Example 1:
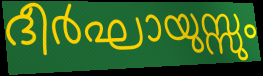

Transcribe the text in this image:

ദീർഘായുസ്സും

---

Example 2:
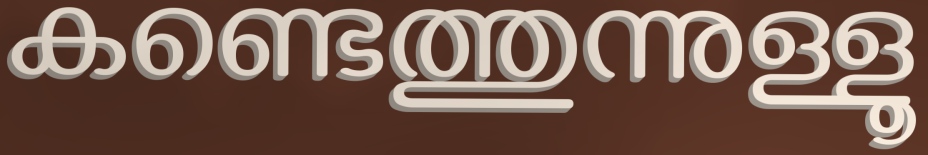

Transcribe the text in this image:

കണ്ടെത്തുന്നുള്ളൂ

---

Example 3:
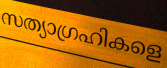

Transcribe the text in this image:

സത്യാഗ്രഹികളെ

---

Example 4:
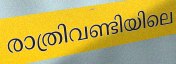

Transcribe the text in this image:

രാത്രിവണ്ടിയിലെ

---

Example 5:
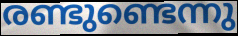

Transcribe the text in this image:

രണ്ടുണ്ടെന്നു